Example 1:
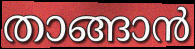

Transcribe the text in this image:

താങ്ങാൻ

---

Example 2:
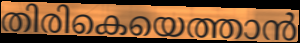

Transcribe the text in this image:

തിരികെയെത്താൻ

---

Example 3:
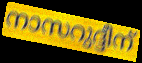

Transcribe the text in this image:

നാസറുദ്ദീന്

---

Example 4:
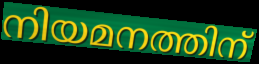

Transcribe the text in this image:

നിയമനത്തിന്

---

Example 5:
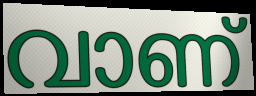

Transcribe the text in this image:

വാണ്